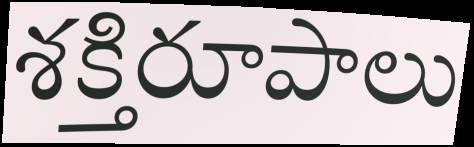
శక్తిరూపాలు